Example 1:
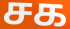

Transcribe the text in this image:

சக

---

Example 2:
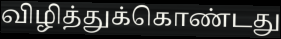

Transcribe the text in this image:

விழித்துக்கொண்டது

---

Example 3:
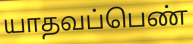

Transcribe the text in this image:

யாதவப்பெண்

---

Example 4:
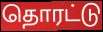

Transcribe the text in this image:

தொரட்டு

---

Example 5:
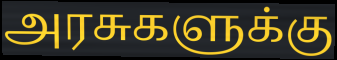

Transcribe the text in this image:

அரசுகளுக்கு